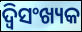
ଦ୍ୱିସଂଖ୍ୟକ